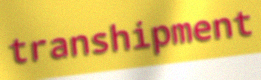
transhipment